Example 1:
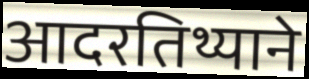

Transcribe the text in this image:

आदरतिथ्याने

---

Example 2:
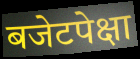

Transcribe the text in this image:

बजेटपेक्षा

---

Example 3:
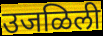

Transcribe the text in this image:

उजळिली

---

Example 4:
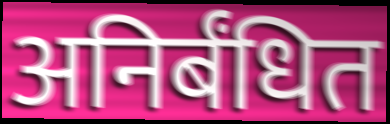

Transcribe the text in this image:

अनिर्बंधित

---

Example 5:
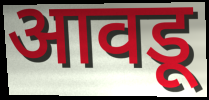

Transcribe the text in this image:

आवडू